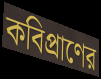
কবিপ্রাণের